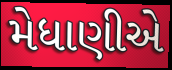
મેધાણીએ